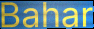
Bahar